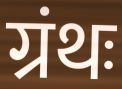
ग्रंथः